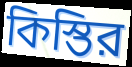
কিস্তির